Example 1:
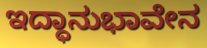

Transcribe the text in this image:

ಇದ್ಧಾನುಭಾವೇನ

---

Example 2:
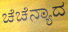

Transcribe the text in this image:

ಚೆಚೆನ್ಯಾದ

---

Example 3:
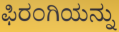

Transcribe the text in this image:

ಫಿರಂಗಿಯನ್ನು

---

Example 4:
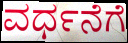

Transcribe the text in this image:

ವರ್ಧನೆಗೆ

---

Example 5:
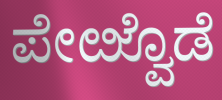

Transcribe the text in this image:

ಪೇೞ್ವೊಡೆ